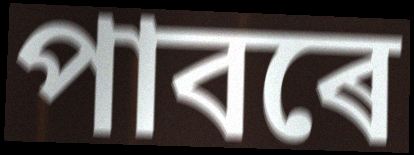
পাবৰে